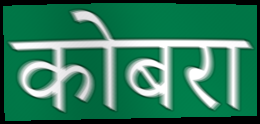
कोबरा